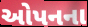
ઓપનના